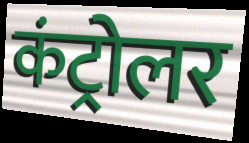
कंट्रोलर